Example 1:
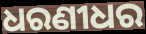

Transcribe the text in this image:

ଧରଣୀଧର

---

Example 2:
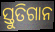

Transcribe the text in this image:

ସ୍ତୁତିଗାନ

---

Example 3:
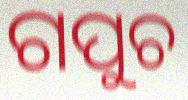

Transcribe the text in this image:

ଗପୁଚ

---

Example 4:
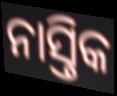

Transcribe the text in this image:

ନାସ୍ତିକ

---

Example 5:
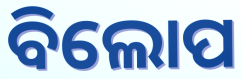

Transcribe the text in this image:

ବିଲୋପ